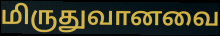
மிருதுவானவை